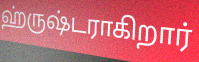
ஹ்ருஷ்டராகிறார்